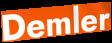
Demler